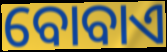
ବୋବାଏ